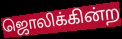
ஜொலிக்கின்ற